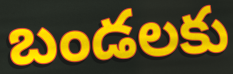
బండలకు